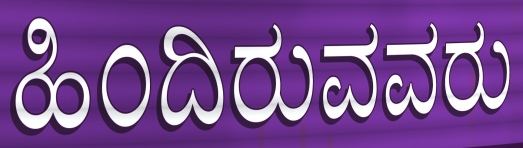
ಹಿಂದಿರುವವರು